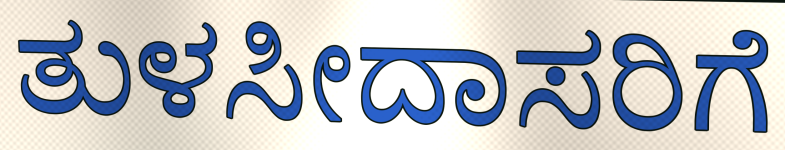
ತುಳಸೀದಾಸರಿಗೆ